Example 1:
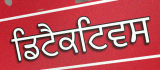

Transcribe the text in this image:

ਡਿਟੈਕਟਿਵਸ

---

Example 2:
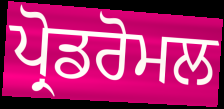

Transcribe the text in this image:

ਪ੍ਰੋਡਰੋਮਲ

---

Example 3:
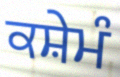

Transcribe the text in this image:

ਕਸ਼ੇਮੰ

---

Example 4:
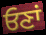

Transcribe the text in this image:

ਓਣਾਂ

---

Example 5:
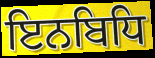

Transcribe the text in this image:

ਇਨਬਿਧਿ